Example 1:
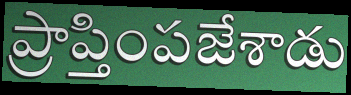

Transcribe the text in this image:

ప్రాప్తింపజేశాడు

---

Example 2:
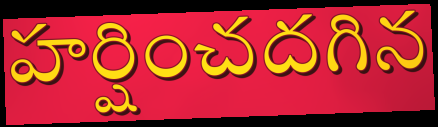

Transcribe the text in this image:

హర్షించదగిన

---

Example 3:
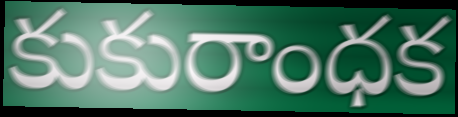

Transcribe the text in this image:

కుకురాంధక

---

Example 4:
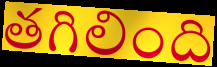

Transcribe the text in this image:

తగిలింది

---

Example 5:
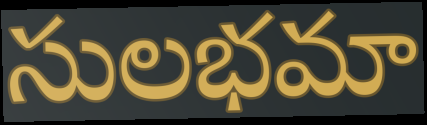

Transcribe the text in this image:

సులభమా